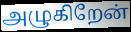
அழுகிறேன்